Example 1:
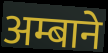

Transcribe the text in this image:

अम्बाने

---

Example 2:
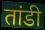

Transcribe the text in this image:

तांडी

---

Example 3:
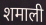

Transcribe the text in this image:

शमाली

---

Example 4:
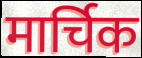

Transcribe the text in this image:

मार्चिक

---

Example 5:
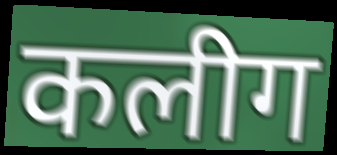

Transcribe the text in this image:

कलीग